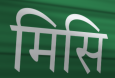
मिसि